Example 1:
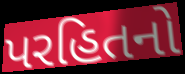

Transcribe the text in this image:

પરહિતનો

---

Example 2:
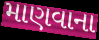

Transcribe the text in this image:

માણવાના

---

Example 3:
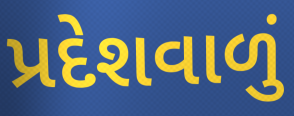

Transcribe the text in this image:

પ્રદેશવાળું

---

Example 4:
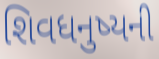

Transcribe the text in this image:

શિવધનુષ્યની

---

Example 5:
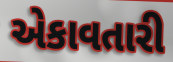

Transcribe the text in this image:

એકાવતારી